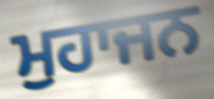
ਮੁਹਾਜਨ